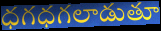
ధగధగలాడుతూ